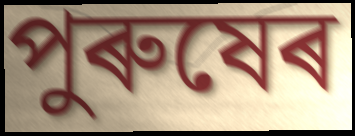
পুৰুষেৰ